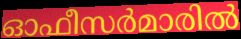
ഓഫീസർമാരിൽ